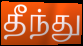
தீந்து